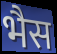
भैस